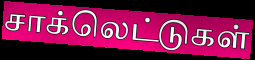
சாக்லெட்டுகள்